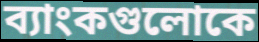
ব্যাংকগুলোকে